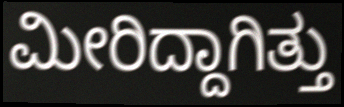
ಮೀರಿದ್ದಾಗಿತ್ತು